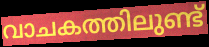
വാചകത്തിലുണ്ട്